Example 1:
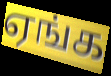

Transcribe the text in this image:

ஏங்க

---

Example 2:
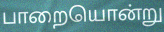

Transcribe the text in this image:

பாறையொன்று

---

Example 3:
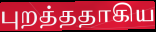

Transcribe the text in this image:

புறத்ததாகிய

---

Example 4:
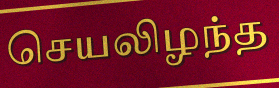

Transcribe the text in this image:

செயலிழந்த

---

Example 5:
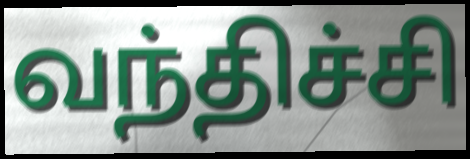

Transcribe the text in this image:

வந்திச்சி